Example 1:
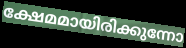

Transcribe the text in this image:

ക്ഷേമമായിരിക്കുന്നോ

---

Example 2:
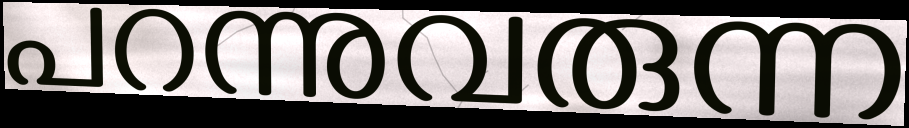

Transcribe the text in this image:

പറന്നുവരുന്ന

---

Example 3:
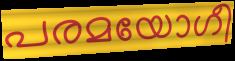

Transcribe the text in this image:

പരമയോഗീ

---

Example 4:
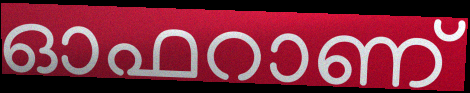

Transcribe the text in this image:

ഓഫറാണ്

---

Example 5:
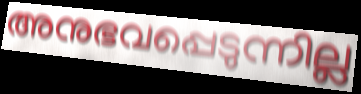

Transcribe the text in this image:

അനുഭവപ്പെടുന്നില്ല